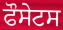
ਫੌਸੇਟਸ